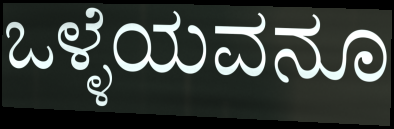
ಒಳ್ಳೆಯವನೂ